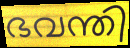
ഭവന്തി